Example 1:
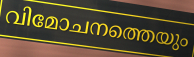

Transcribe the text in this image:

വിമോചനത്തെയും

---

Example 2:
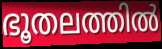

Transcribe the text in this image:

ഭൂതലത്തിൽ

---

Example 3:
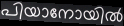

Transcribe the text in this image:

പിയാനോയിൽ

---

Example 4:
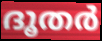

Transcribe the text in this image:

ദൂതർ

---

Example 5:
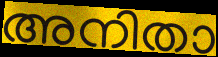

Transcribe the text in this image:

അനിതാ